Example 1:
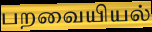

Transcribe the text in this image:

பறவையியல்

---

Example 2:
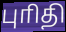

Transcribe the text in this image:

புரிதி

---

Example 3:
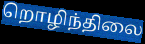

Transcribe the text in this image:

றொழிந்திலை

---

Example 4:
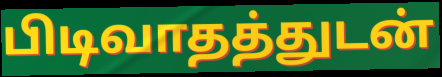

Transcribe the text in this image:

பிடிவாதத்துடன்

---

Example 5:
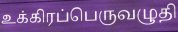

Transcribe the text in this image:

உக்கிரப்பெருவழுதி